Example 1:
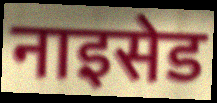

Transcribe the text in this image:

नाइसेड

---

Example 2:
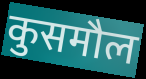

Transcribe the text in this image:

कुसमौल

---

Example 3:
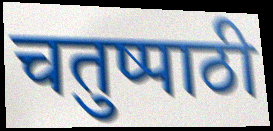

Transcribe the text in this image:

चतुष्पाठी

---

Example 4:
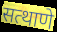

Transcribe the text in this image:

सत्थाणे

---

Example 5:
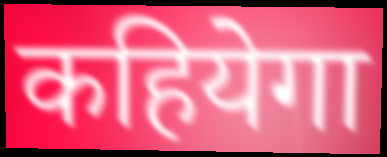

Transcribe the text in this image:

कहियेगा